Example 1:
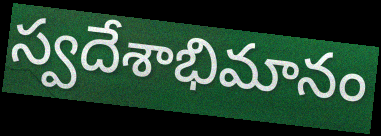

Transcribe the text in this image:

స్వదేశాభిమానం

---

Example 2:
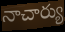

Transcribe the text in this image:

నాచార్యు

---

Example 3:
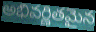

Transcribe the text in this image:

అభివర్ణితమైన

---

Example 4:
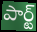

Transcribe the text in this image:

పార్ట్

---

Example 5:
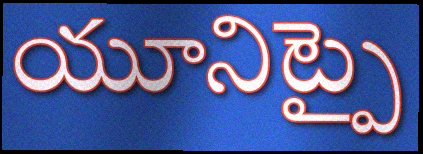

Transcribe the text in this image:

యూనిట్పై